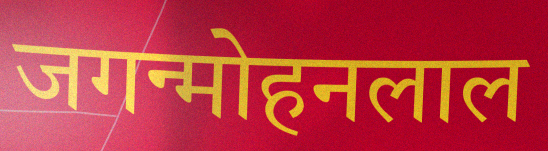
जगन्मोहनलाल